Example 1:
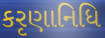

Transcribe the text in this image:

કરૃણાનિધિ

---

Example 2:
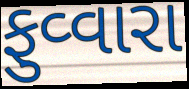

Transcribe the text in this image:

ફુવ્વારા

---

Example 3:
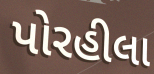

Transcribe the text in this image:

પોરહીલા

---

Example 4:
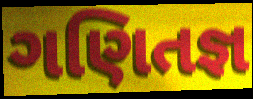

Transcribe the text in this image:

ગણિતજ્ઞ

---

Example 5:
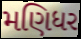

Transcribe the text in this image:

મણિધર